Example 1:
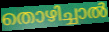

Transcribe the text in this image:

തൊഴിച്ചാൽ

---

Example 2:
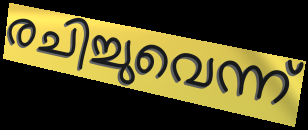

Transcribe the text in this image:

രചിച്ചുവെന്ന്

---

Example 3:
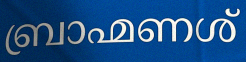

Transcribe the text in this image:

ബ്രാഹ്മണശ്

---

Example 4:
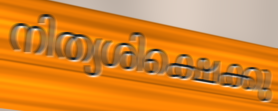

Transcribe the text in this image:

നിത്യശിക്ഷെക്കു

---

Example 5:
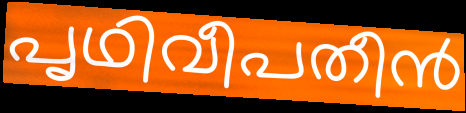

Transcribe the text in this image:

പൃഥിവീപതീൻ